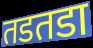
तडतडा